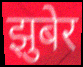
झुबेर